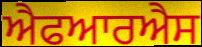
ਐਫਆਰਐਸ